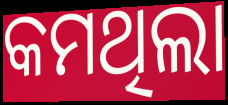
କମଥିଲା